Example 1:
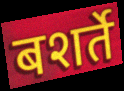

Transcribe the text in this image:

बशर्ते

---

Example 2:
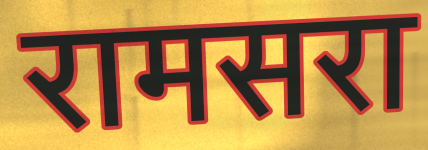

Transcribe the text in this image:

रामसरा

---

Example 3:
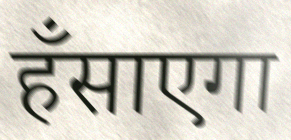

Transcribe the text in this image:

हँसाएगा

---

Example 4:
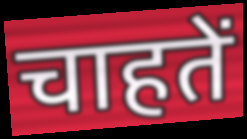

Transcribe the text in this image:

चाहतें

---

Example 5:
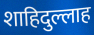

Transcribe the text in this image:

शाहिदुल्लाह